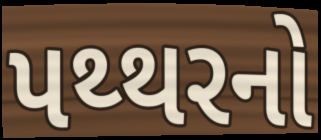
પથ્થરનો